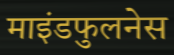
माइंडफुलनेस